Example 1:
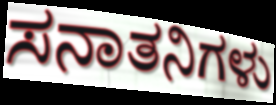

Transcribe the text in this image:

ಸನಾತನಿಗಳು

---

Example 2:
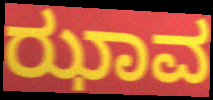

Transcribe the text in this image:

ಝಾವ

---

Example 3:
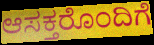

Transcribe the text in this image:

ಆಸಕ್ತರೊಂದಿಗೆ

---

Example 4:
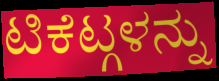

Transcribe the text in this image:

ಟಿಕೆಟ್ಗಳನ್ನು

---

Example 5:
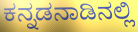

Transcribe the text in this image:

ಕನ್ನಡನಾಡಿನಲ್ಲಿ